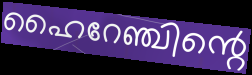
ഹൈറേഞ്ചിന്റെ